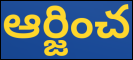
ఆర్జించ